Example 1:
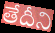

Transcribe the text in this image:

తేదీని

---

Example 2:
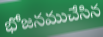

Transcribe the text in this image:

భోజనముచేసిన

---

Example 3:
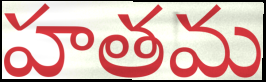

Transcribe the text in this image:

హతమ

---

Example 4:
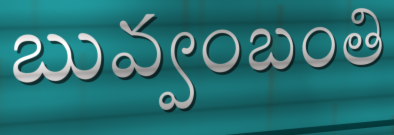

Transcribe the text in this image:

బువ్వంబంతి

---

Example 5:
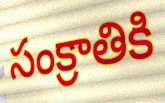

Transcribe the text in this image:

సంక్రాతికి